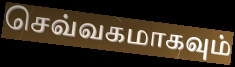
செவ்வகமாகவும்